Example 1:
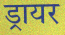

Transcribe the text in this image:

ड्रायर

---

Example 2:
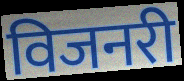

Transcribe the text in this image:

विजनरी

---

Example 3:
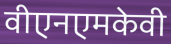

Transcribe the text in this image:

वीएनएमकेवी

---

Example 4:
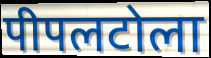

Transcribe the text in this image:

पीपलटोला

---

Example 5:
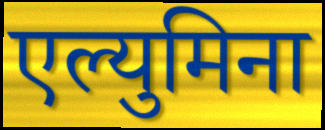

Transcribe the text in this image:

एल्युमिना